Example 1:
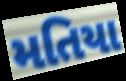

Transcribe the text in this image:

મતિયા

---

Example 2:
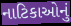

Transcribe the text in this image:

નાટિકાઓનું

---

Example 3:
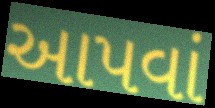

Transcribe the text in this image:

આપવાં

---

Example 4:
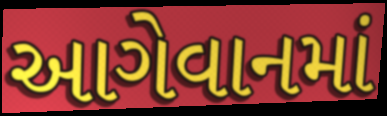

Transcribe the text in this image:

આગેવાનમાં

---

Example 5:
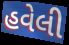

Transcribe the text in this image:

હવેલી